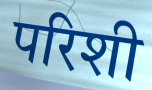
परिशी